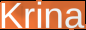
Krina